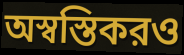
অস্বস্তিকরও